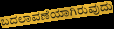
ಬದಲಾವಣೆಯಾಗಿರುವುದು